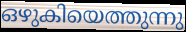
ഒഴുകിയെത്തുന്നു